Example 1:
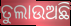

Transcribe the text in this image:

ତୁଲାଉଅଛି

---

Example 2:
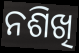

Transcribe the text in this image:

ନଶିଖି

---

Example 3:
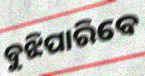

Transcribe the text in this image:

ବୁଝିପାରିବେ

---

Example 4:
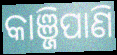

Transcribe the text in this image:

କାଞ୍ଜିପାଣି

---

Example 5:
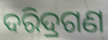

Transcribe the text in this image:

ଦରିଦ୍ରଗଣ